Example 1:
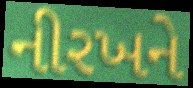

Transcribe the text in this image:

નીરખને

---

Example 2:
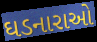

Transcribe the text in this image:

ઘડનારાઓ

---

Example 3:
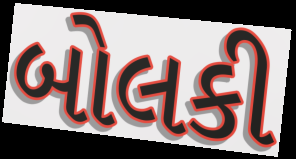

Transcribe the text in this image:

બોલકી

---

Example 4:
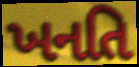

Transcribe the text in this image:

ખનતિ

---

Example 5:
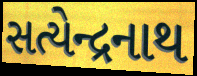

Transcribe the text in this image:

સત્યેન્દ્રનાથ